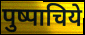
पुष्पाचिये